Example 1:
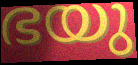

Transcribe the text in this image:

ഭയു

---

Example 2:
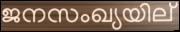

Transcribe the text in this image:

ജനസംഖ്യയില്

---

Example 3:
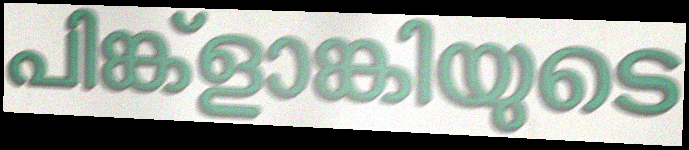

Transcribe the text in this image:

പിങ്ക്ളാങ്കിയുടെ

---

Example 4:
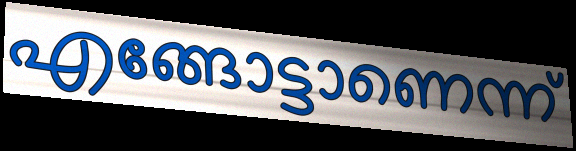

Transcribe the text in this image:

എങ്ങോട്ടാണെന്ന്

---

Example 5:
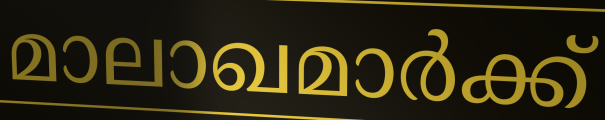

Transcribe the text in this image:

മാലാഖമാർക്ക്